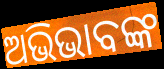
ଅଭିଭାବଙ୍କ